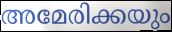
അമേരിക്കയും